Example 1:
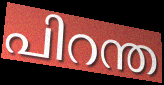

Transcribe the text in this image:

പിറന്ത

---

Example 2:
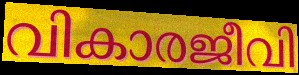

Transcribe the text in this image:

വികാരജീവി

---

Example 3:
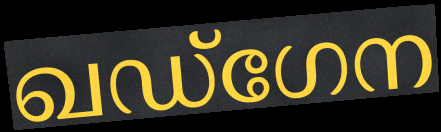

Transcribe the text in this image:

ഖഡ്ഗേന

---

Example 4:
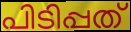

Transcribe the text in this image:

പിടിപ്പത്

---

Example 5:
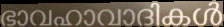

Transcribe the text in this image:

ഭാവഹാവാദികൾ